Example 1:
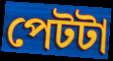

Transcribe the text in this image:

পেটটা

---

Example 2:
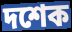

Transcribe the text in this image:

দশেক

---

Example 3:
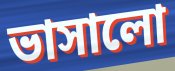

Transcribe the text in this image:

ভাসালো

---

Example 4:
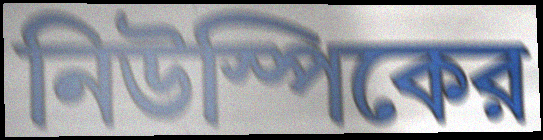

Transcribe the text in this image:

নিউস্পিকের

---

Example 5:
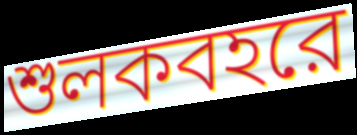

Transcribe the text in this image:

শুলকবহরে